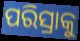
ପରିସ୍ରାକୁ